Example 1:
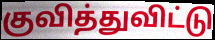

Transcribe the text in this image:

குவித்துவிட்டு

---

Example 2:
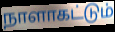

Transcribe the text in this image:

நாளாகட்டும்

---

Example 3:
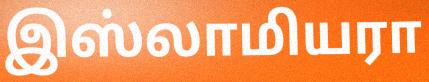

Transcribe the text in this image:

இஸ்லாமியரா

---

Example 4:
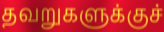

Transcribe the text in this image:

தவறுகளுக்குச்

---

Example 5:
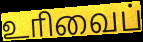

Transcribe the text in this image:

உரிவைப்